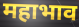
महाभाव